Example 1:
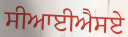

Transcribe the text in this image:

ਸੀਆਈਐਸਏ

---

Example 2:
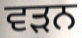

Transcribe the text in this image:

ਵਡ਼ਨ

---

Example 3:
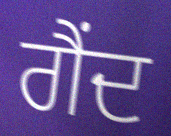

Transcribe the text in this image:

ਗੈਂਦ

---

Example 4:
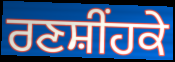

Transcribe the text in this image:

ਰਣਸ਼ੀਂਹਕੇ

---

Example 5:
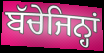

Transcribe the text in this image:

ਬੱਚੇਜਿਨ੍ਹਾਂ